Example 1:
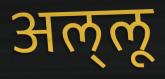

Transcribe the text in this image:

अल्लू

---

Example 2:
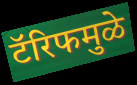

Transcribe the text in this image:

टॅरिफमुळे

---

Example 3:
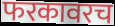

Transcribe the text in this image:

फरकावरच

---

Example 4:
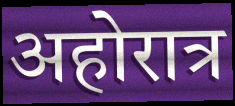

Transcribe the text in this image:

अहोरात्र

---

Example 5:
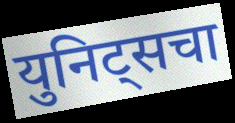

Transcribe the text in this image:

युनिट्सचा